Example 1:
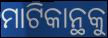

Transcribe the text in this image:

ମାଟିକାନ୍ଥକୁ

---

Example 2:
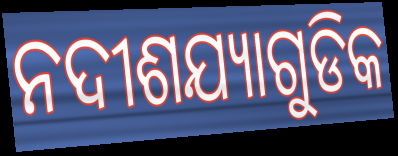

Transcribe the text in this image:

ନଦୀଶଯ୍ୟାଗୁଡିକ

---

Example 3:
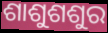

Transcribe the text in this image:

ଶାଶୁଶଶୁର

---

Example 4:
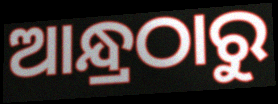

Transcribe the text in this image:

ଆନ୍ଧ୍ରଠାରୁ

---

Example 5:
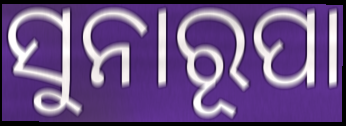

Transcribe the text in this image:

ସୁନାରୂପା